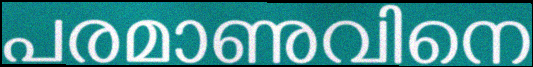
പരമാണുവിനെ